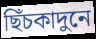
ছিঁচকাদুনে